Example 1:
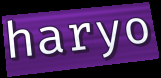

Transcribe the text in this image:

haryo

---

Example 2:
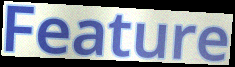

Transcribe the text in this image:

Feature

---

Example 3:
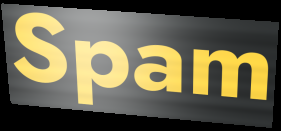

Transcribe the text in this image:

Spam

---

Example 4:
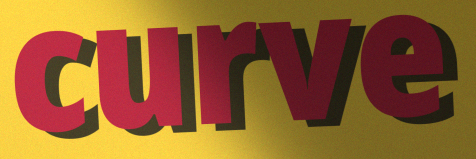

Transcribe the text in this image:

curve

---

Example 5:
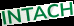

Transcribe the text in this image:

INTACH